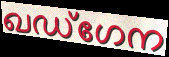
ഖഡ്ഗേന